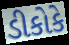
ડીકોકે